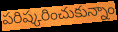
పరిష్కరించుకున్నాం